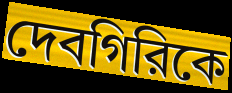
দেবগিরিকে